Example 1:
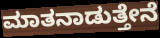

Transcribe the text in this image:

ಮಾತನಾಡುತ್ತೇನೆ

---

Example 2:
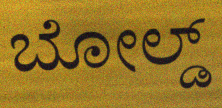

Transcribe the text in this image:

ಬೋಲ್ಡ್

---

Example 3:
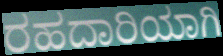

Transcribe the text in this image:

ರಹದಾರಿಯಾಗಿ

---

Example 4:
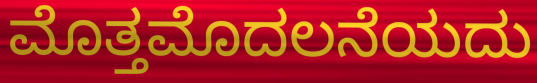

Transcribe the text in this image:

ಮೊತ್ತಮೊದಲನೆಯದು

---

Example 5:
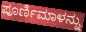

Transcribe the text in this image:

ಪೂರ್ಣಿಮಾಳನ್ನು